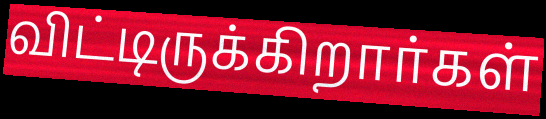
விட்டிருக்கிறார்கள்